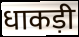
धाकड़ी